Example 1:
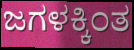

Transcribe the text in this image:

ಜಗಳಕ್ಕಿಂತ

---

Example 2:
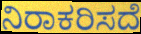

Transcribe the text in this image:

ನಿರಾಕರಿಸದೆ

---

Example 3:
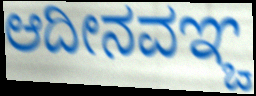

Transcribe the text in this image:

ಆದೀನವಞ್ಚ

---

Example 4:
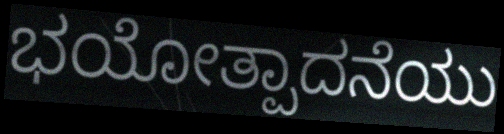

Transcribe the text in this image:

ಭಯೋತ್ಪಾದನೆಯು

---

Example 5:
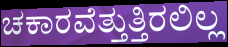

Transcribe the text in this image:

ಚಕಾರವೆತ್ತುತ್ತಿರಲಿಲ್ಲ